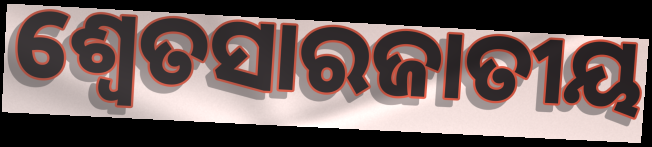
ଶ୍ଵେତସାରଜାତୀୟ